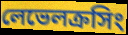
লেভেলক্রসিং